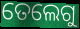
ତେଲେଗୁ